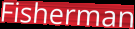
Fisherman